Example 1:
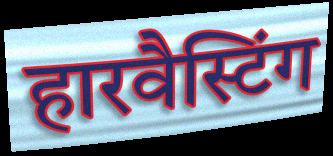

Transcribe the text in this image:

हारवैस्टिंग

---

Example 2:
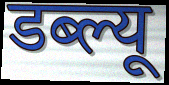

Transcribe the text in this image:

डब्ल्यू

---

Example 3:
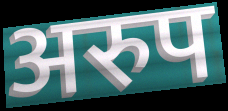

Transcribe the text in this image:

अरुप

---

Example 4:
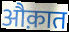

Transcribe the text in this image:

औक़ात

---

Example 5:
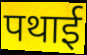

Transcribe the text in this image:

पथाई